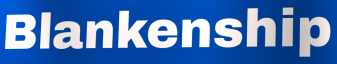
Blankenship